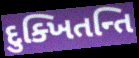
દુક્ખિતન્તિ